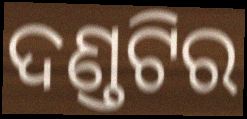
ଦଣ୍ଡଟିର